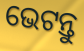
ଭେଟନ୍ତୁ